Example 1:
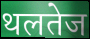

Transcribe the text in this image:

थलतेज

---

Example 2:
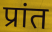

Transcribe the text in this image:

प्रांत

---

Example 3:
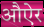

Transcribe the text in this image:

औऐर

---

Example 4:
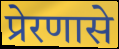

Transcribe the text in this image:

प्रेरणासे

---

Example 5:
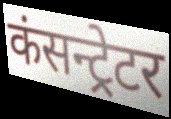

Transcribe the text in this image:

कंसन्ट्रेटर